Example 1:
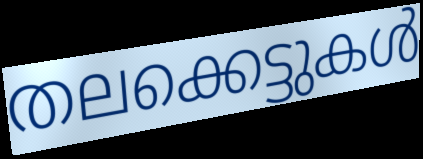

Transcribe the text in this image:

തലക്കെട്ടുകൾ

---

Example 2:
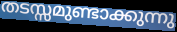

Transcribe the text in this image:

തടസ്സമുണ്ടാക്കുന്നു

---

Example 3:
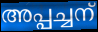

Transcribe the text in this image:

അപ്പച്ചന്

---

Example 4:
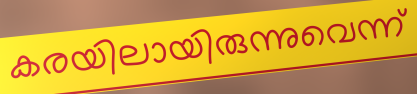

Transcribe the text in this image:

കരയിലായിരുന്നുവെന്ന്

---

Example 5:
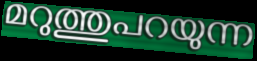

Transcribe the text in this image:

മറുത്തുപറയുന്ന